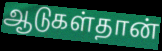
ஆடுகள்தான்